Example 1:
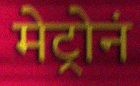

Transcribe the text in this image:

मेट्रोनं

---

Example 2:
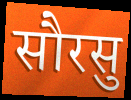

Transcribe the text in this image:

सौरसु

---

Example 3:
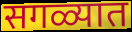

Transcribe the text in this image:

सगळ्यात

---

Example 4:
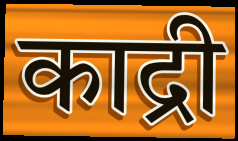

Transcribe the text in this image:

काद्री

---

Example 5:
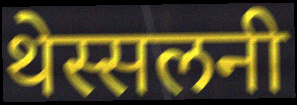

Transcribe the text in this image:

थेस्सलनी